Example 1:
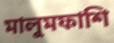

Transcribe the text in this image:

মালুমফাশি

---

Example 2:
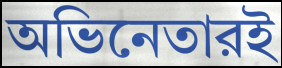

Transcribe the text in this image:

অভিনেতারই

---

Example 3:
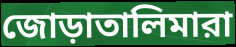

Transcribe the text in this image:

জোড়াতালিমারা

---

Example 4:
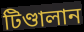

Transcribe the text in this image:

টিণ্ডালান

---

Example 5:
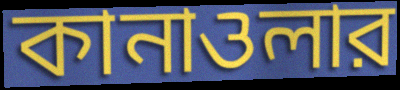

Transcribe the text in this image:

কানাওলার